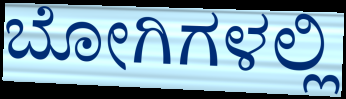
ಬೋಗಿಗಳಲ್ಲಿ